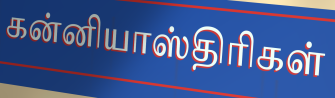
கன்னியாஸ்திரிகள்